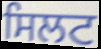
ਸਿਲਟ